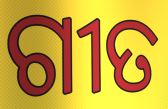
ଗୀତ